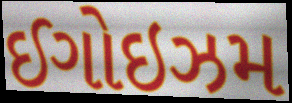
ઈગોઇઝમ